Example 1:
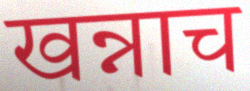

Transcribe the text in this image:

खन्नाच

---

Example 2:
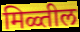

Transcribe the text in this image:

मिळ्तील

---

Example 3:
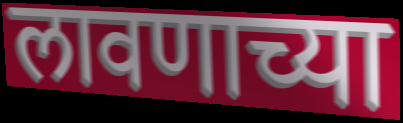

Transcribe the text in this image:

लावणाच्या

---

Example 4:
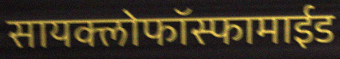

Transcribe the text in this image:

सायक्लोफॉस्फामाईड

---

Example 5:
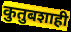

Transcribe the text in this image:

कुतुबशाही